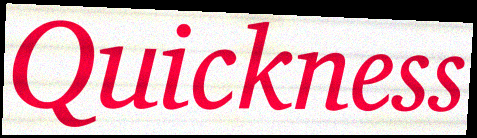
Quickness